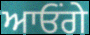
ਆਓਂਗੇ